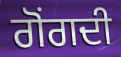
ਗੋਂਗਦੀ